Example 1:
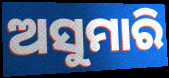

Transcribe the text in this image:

ଅସୁମାରି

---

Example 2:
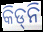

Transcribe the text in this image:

କିଡ୍‌ନି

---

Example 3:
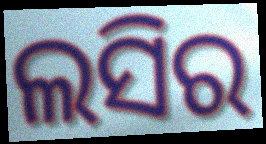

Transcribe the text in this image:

ଲସିର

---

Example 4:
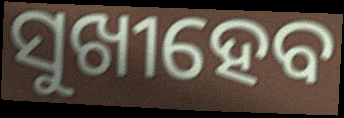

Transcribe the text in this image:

ସୁଖୀହେବ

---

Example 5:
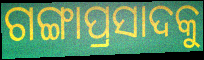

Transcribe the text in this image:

ଗଙ୍ଗାପ୍ରସାଦକୁ